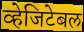
व्हेजिटेबल